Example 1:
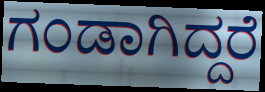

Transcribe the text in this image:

ಗಂಡಾಗಿದ್ದರೆ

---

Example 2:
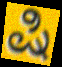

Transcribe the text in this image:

ಷಿ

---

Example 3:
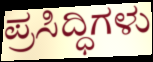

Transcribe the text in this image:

ಪ್ರಸಿದ್ಧಿಗಳು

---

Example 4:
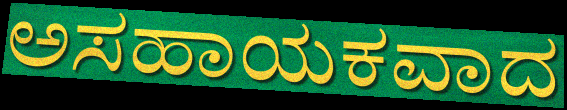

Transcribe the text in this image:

ಅಸಹಾಯಕವಾದ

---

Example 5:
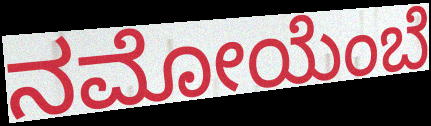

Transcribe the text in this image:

ನಮೋಯೆಂಬೆ